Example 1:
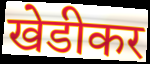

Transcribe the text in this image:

खेडीकर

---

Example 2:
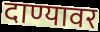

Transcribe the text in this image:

दाण्यावर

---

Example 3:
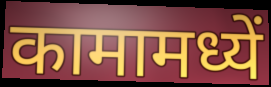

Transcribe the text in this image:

कामामध्यें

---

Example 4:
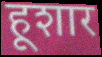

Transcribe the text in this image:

हूशार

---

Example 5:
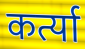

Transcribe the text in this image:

कर्त्या